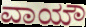
ವಾಯೌ